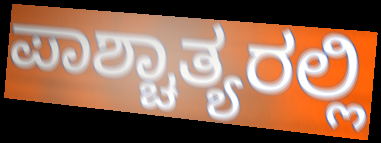
ಪಾಶ್ಚಾತ್ಯರಲ್ಲಿ